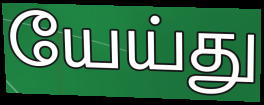
யேய்து